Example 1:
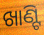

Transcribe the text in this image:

ଖାଣ୍ଟି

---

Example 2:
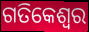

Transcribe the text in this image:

ଗତିକେଶ୍ବର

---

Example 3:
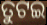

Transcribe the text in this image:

ତୁଟଇ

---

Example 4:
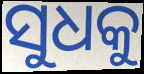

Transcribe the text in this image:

ସୁଧକୁ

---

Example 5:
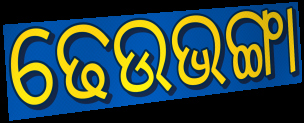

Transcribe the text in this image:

ଢେଉଭଙ୍ଗା